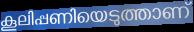
കൂലിപ്പണിയെടുത്താണ്